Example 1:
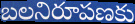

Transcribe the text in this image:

బలనిరూపణకు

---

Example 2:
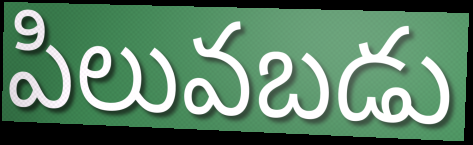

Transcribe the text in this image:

పిలువబడు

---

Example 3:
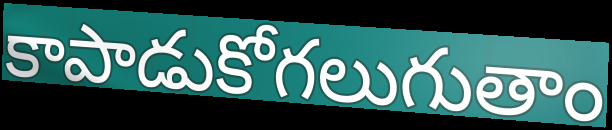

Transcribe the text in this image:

కాపాడుకోగలుగుతాం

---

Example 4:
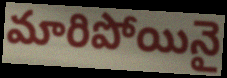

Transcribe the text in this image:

మారిపోయినై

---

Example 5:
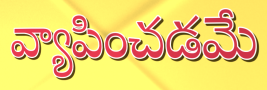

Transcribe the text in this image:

వ్యాపించడమే